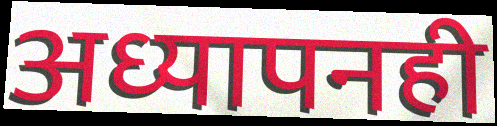
अध्यापनही